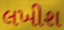
લખીશ